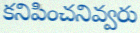
కనిపించనివ్వరు